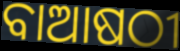
ବାଆଷଠୀ